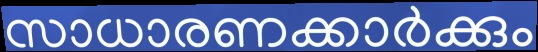
സാധാരണക്കാർക്കും